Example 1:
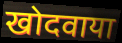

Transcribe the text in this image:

खोदवाया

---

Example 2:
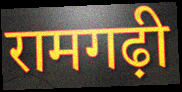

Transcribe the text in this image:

रामगढ़ी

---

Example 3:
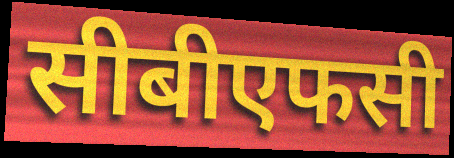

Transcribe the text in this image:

सीबीएफसी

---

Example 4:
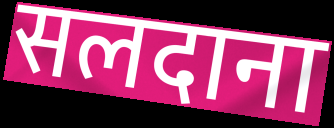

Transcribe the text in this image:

सलदाना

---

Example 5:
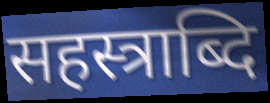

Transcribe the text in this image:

सहस्त्राब्दि